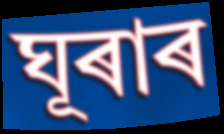
ঘূৰাৰ